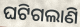
ଘଟିଗଲାଣି